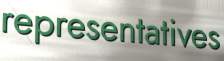
representatives